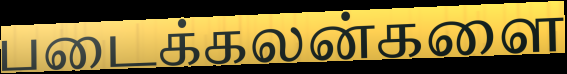
படைக்கலன்களை